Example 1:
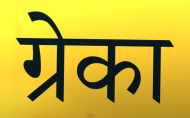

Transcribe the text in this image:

ग्रेका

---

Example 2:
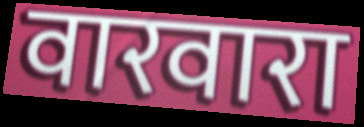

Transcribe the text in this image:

वारवारा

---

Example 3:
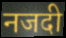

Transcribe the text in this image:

नजदी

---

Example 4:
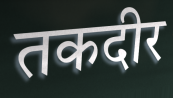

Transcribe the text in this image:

तकदीर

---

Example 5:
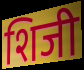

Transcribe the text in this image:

शिजी